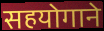
सहयोगाने